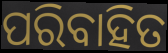
ପରିବାହିତ